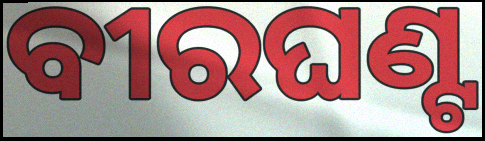
ବୀରଘଣ୍ଟ